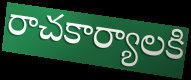
రాచకార్యాలకి